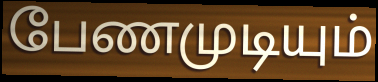
பேணமுடியும்